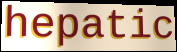
hepatic